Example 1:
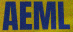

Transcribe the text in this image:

AEML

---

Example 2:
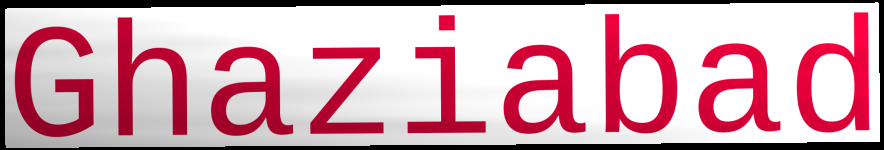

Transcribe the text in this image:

Ghaziabad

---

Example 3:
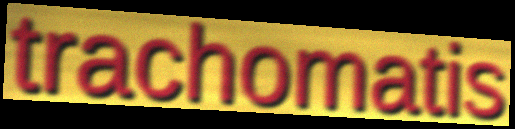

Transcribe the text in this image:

trachomatis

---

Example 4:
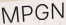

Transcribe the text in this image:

MPGN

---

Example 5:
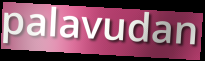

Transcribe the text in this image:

palavudan